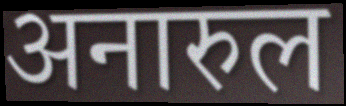
अनारुल